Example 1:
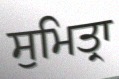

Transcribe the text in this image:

ਸੁਮਿਤ੍ਰਾ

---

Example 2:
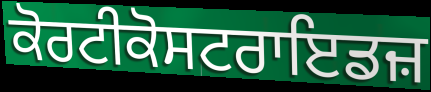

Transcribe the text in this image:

ਕੋਰਟੀਕੋਸਟਰਾਇਡਜ਼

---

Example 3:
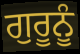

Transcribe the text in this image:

ਗੁਰੂਨੂੰ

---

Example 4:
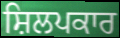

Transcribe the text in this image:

ਸ਼ਿਲਪਕਾਰ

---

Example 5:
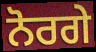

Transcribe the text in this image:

ਨੋਰਗੇ